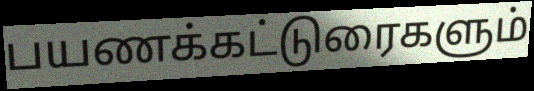
பயணக்கட்டுரைகளும்